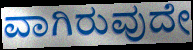
ವಾಗಿರುವುದೇ